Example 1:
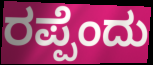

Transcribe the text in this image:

ರಪ್ಪೆಂದು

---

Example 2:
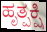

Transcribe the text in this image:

ಹೃತ್ಪಕ್ಷಿ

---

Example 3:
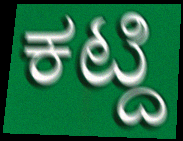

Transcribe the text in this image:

ಕಟ್ದಿ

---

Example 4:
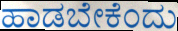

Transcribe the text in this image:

ಹಾಡಬೇಕೆಂದು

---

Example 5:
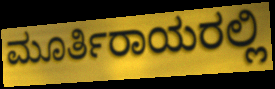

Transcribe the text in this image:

ಮೂರ್ತಿರಾಯರಲ್ಲಿ